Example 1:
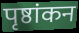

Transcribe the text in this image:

पृष्ठांकन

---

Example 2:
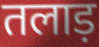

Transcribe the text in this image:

तलाड़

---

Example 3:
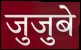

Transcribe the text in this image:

जुजुबे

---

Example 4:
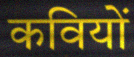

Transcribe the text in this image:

कवियों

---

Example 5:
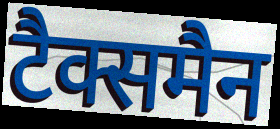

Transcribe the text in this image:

टैक्समैन